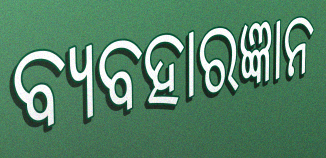
ବ୍ୟବହାରଜ୍ଞାନ